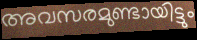
അവസരമുണ്ടായിട്ടും